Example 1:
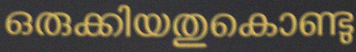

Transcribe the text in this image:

ഒരുക്കിയതുകൊണ്ടു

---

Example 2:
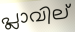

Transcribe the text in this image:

പ്ലാവില്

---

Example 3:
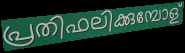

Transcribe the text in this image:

പ്രതിഫലിക്കുമ്പോള്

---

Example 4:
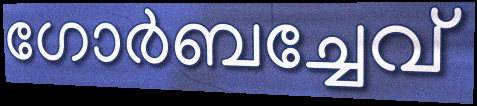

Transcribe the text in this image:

ഗോർബച്ചേവ്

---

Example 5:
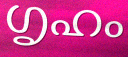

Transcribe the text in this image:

ഗൃഹം